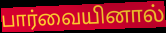
பார்வையினால்